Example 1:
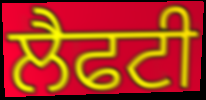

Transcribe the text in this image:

ਲੈਫਟੀ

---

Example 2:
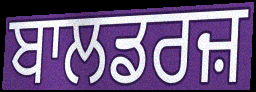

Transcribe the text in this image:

ਬਾਲਡਰਜ਼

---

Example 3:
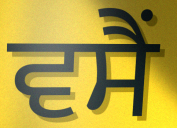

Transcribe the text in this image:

ਵਸੈਂ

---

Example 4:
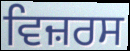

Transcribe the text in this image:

ਵਿਜ਼ਰਸ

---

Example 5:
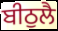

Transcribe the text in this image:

ਬੀਠੁਲੈ